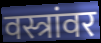
वस्त्रांवर